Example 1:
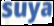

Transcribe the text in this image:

suya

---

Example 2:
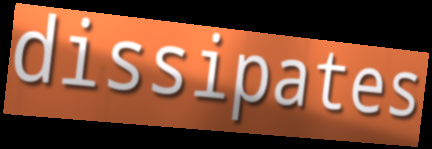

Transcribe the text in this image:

dissipates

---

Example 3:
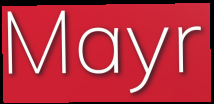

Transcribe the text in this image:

Mayr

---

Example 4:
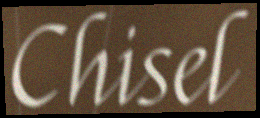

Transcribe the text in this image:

Chisel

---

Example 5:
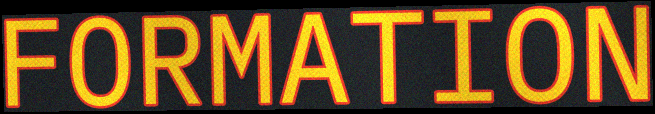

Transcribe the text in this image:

FORMATION